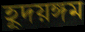
হূদয়ঙ্গম